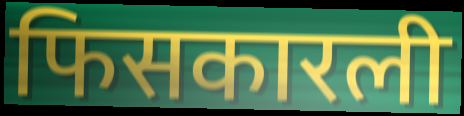
फिसकारली